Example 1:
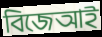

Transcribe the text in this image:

বিজেআই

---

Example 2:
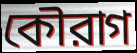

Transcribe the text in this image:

কৌরাগ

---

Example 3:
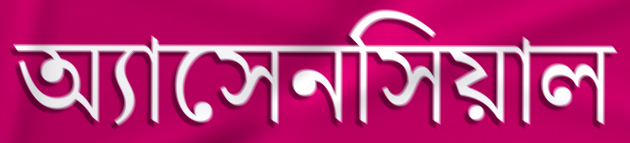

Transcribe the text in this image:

অ্যাসেনসিয়াল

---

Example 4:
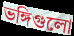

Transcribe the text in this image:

ভঙ্গিগুলো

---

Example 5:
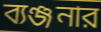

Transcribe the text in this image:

ব্যঞ্জনার